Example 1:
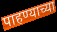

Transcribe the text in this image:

पाहण्याच्या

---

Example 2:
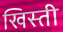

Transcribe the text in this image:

खिस्ती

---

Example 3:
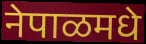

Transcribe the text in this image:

नेपाळमधे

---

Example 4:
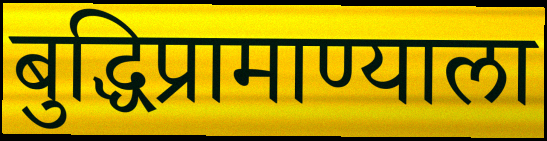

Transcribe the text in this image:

बुद्धिप्रामाण्याला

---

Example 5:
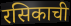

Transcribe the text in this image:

रसिकाची